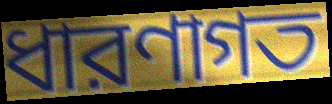
ধারণাগত